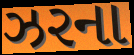
ઝરના